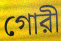
গোরী